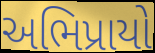
અભિપ્રાયો